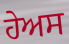
ਹੇਅਸ